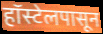
हॉस्टेलपासून